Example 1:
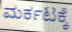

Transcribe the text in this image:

ಮರ್ಕಟಕ್ಕೆ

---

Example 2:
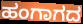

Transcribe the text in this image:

ಹಂಗಾಗದ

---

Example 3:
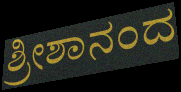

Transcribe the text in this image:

ಶ್ರೀಶಾನಂದ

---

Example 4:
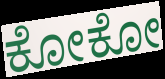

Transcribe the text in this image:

ಕೋಕೋ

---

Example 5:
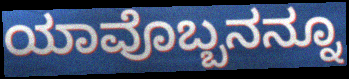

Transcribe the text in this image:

ಯಾವೊಬ್ಬನನ್ನೂ